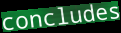
concludes